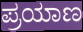
ಪ್ರಯಾಣ